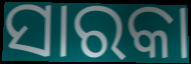
ସାରକା